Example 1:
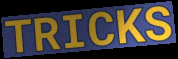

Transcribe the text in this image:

TRICKS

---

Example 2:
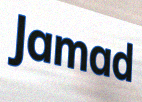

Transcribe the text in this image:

Jamad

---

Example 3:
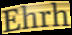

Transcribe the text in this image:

Ehrh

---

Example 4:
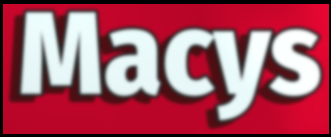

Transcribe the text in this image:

Macys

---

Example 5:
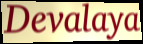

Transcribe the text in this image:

Devalaya